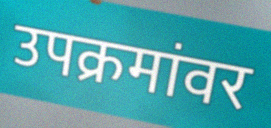
उपक्रमांवर